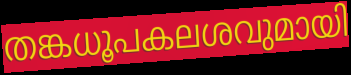
തങ്കധൂപകലശവുമായി